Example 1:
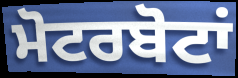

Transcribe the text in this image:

ਮੋਟਰਬੋਟਾਂ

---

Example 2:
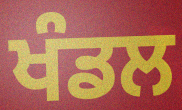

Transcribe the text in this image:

ਖੰਡਲ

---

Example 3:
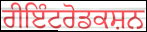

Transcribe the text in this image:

ਰੀਇੰਟਰੋਡਕਸ਼ਨ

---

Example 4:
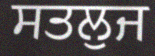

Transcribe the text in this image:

ਸਤਲੁਜ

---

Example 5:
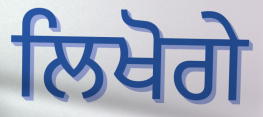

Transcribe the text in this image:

ਲਿਖੋਗੇ